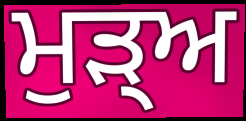
ਮੁਡ਼੍ਅ